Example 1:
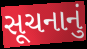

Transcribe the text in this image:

સૂચનાનું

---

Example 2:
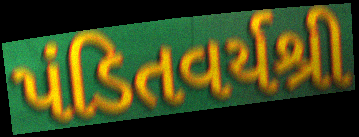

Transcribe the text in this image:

પંડિતવર્યશ્રી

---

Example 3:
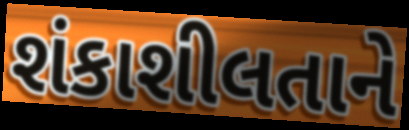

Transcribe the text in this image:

શંકાશીલતાને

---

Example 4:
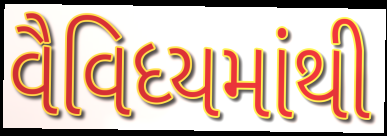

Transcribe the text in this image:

વૈવિધ્યમાંથી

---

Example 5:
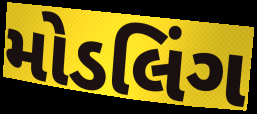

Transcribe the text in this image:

મોડલિંગ